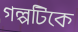
গল্পটিকে